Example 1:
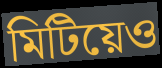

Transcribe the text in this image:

মিটিয়েও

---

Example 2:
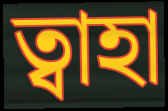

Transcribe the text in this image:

ত্বাহা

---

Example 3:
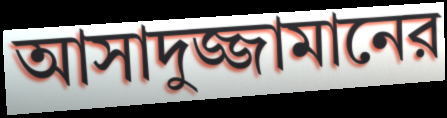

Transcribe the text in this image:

আসাদুজ্জামানের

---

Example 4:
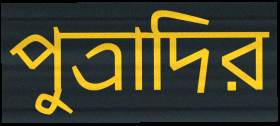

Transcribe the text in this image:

পুত্রাদির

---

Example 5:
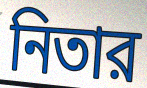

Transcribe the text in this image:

নিতার